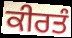
ਕੀਰਤੰ